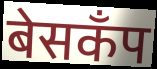
बेसकँप